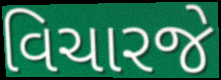
વિચારજે